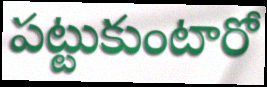
పట్టుకుంటారో